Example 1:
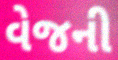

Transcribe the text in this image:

વેજની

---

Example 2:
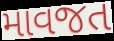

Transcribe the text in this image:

માવજત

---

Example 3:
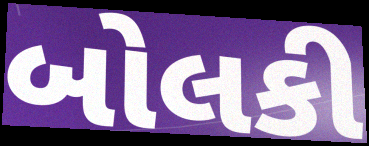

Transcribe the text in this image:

બોલકી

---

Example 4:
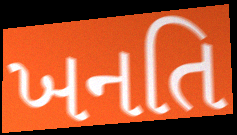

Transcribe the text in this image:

ખનતિ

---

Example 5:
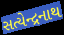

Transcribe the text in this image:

સત્યેન્દ્રનાથ